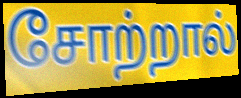
சோற்றால்